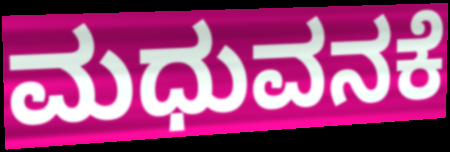
ಮಧುವನಕೆ